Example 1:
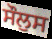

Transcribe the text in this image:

ਸੌਲੁਸ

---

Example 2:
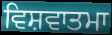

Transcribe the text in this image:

ਵਿਸ਼ਵਾਤਮਾ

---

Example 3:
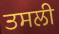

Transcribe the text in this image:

ਤਸਲੀ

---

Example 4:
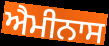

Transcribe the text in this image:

ਐਮੀਨਾਸ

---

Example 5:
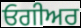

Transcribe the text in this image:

ਓਗੀਅਰ